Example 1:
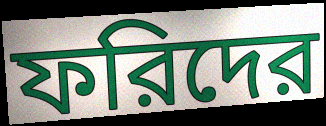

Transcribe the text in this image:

ফরিদের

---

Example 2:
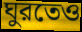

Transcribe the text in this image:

ঘুরতেও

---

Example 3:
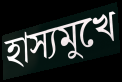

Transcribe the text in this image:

হাস্যমুখে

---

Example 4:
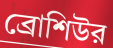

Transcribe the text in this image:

ব্রোশিউর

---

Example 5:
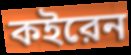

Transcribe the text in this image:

কইরেন